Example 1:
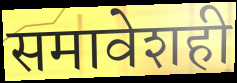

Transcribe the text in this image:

समावेशही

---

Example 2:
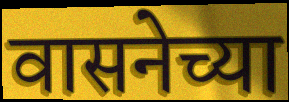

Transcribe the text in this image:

वासनेच्या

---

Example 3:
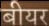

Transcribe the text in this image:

बीयर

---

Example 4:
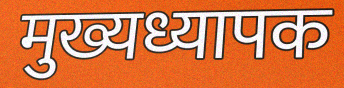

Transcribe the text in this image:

मुख्यध्यापक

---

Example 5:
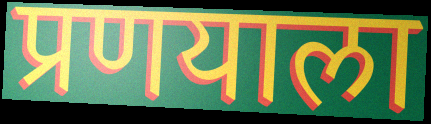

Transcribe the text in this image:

प्रणयाला